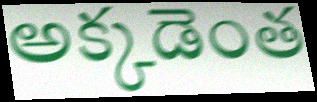
అక్కడెంత